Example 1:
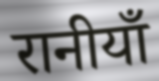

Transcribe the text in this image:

रानीयाँ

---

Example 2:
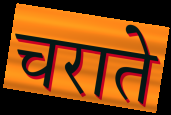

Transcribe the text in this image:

चराते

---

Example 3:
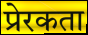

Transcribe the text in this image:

प्रेरकता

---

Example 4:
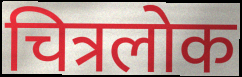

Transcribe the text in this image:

चित्रलोक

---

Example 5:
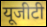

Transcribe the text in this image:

यूजीटी